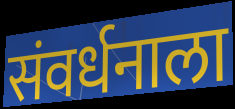
संवर्धनाला